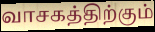
வாசகத்திற்கும்